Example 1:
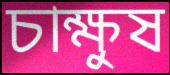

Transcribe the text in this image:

চাক্ষুষ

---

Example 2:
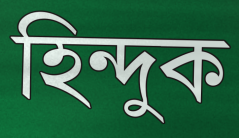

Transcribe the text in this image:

হিন্দুক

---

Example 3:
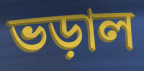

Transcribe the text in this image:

ভড়াল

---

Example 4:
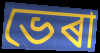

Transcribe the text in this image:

ভেৰা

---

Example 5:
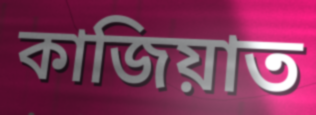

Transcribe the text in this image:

কাজিয়াত